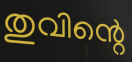
തുവിന്റെ